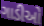
ગાડીઓ